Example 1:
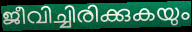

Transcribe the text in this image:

ജീവിച്ചിരിക്കുകയും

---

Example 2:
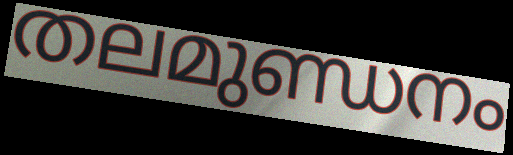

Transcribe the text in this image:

തലമുണ്ഡനം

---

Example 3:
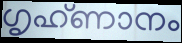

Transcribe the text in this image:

ഗൃഹ്ണാനം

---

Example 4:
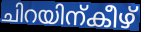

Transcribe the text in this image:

ചിറയിന്കീഴ്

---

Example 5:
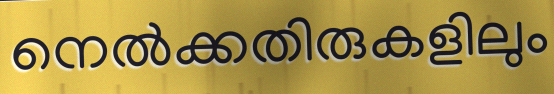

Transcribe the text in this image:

നെൽക്കതിരുകളിലും